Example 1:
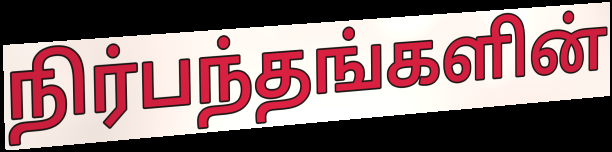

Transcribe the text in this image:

நிர்பந்தங்களின்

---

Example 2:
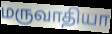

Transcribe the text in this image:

மருவாதியா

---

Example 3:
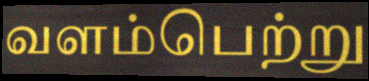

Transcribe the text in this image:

வளம்பெற்று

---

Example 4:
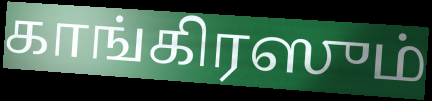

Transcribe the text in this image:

காங்கிரஸும்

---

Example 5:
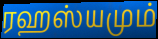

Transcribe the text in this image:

ரஹஸ்யமும்